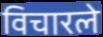
विचारले